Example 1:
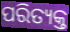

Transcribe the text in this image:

ପରିତ୍ଯକ୍ତ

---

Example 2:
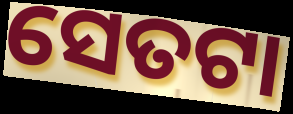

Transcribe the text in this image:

ସେତଟା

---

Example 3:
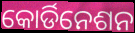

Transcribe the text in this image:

କୋର୍ଡିନେଶନ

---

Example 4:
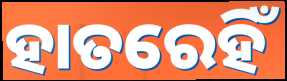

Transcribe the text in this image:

ହାତରେହିଁ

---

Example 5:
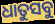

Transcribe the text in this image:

ଧାତୁସବୁ